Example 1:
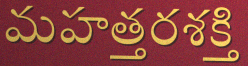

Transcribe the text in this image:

మహత్తరశక్తి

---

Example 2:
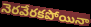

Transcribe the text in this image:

నెరవేరకపోయినా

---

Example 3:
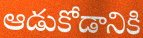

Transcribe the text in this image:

ఆడుకోడానికి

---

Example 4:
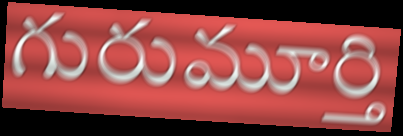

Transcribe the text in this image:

గురుమూర్తి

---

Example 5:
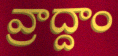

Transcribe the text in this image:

వ్రాద్దాం